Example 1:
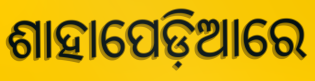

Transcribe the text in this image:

ଶାହାପେଡ଼ିଆରେ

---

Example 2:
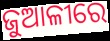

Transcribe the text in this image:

ଜୁଆଳୀରେ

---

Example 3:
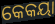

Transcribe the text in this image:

କେକୟା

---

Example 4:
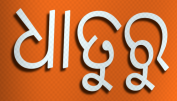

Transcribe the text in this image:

ଧାତୁରୁ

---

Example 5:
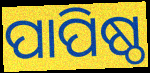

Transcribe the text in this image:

ପାପିଷ୍ଠ